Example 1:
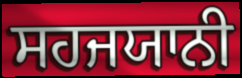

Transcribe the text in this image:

ਸਹਜਯਾਨੀ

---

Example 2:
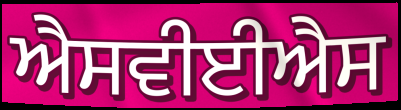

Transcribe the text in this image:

ਐਸਵੀਈਐਸ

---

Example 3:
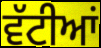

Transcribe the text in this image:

ਵੱਟੀਆਂ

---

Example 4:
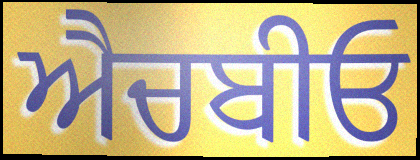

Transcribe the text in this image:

ਐਚਬੀਓ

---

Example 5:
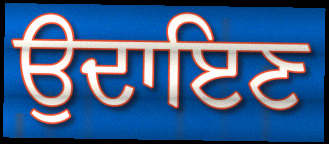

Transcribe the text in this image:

ਉਦਾਇਣ